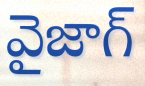
వైజాగ్